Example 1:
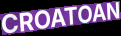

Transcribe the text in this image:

CROATOAN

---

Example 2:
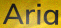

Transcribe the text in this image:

Aria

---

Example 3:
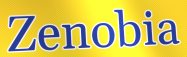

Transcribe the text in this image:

Zenobia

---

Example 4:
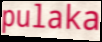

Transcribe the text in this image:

pulaka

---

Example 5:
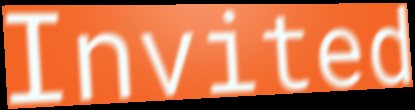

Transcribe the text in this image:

Invited